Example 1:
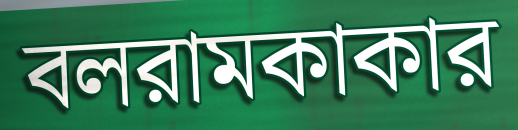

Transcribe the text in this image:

বলরামকাকার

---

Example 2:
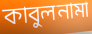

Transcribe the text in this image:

কাবুলনামা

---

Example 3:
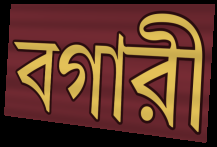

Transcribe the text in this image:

বগারী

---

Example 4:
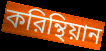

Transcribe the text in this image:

করিন্থিয়ান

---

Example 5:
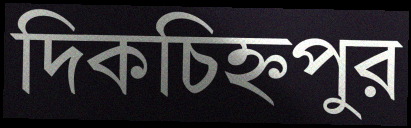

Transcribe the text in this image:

দিকচিহ্নপুর